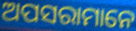
ଅପସରାମାନେ